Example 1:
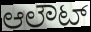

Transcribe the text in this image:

ಆಲೌಟ್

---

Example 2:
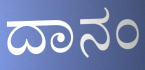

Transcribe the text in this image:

ದಾನಂ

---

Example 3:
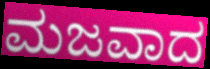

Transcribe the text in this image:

ಮಜವಾದ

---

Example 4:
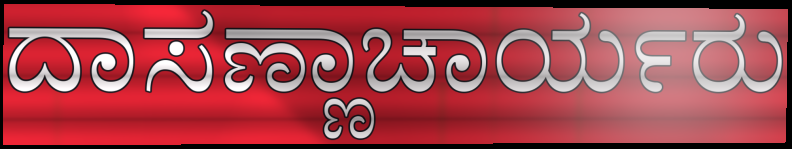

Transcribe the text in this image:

ದಾಸಣ್ಣಾಚಾರ್ಯರು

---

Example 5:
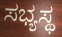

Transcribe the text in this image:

ಸಭ್ಯಸ್ಥ